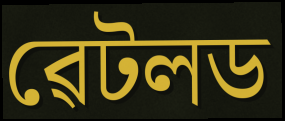
ৱেটলড